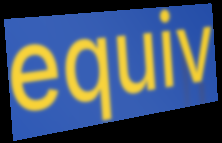
equiv